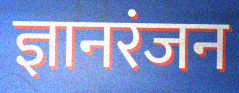
ज्ञानरंजन